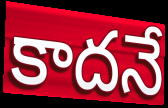
కాదనే